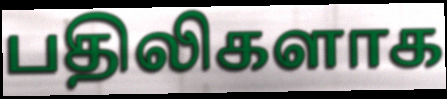
பதிலிகளாக